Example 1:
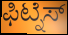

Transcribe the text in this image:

ಫಿಟ್ನೆಸ್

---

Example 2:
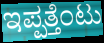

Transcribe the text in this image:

ಇಪ್ಪತ್ತೆಂಟು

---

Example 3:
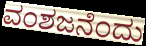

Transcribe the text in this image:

ವಂಶಜನೆಂದು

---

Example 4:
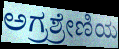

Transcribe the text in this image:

ಅಗ್ರಶ್ರೇಣಿಯ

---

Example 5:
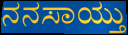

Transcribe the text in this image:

ನನಸಾಯ್ತು